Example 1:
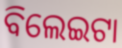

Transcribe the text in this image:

ବିଲେଇଟା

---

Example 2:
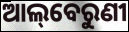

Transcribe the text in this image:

ଆଲ୍‌ବେରୁଣୀ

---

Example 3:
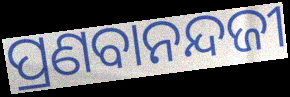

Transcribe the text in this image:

ପ୍ରଣବାନନ୍ଦଜୀ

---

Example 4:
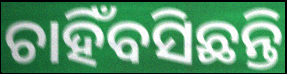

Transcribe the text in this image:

ଚାହିଁବସିଛନ୍ତି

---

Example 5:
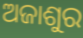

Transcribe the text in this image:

ଅଜାଶୁର